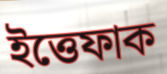
ইত্তেফাক